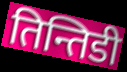
तिन्तिडी